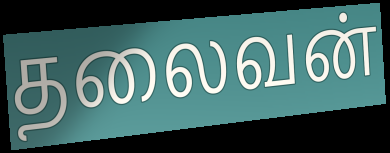
தலைவன்